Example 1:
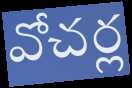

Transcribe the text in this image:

వోచర్ల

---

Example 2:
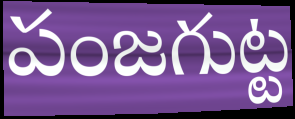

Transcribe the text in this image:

పంజగుట్ట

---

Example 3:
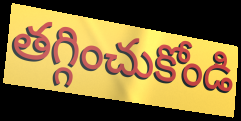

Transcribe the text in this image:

తగ్గించుకోండి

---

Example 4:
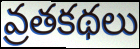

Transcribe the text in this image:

వ్రతకథలు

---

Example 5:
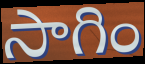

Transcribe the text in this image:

సాగిం